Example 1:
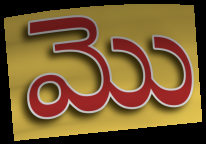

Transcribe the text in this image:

మొ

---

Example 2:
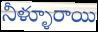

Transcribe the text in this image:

నీళ్ళూరాయి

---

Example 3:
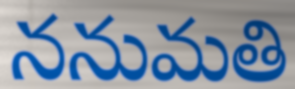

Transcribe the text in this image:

ననుమతి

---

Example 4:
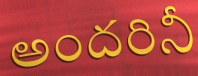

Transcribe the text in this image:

అందరినీ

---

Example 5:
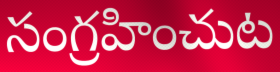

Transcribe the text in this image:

సంగ్రహించుట